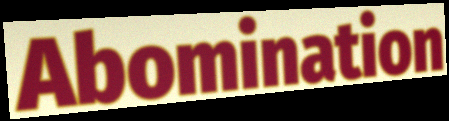
Abomination